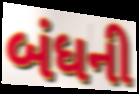
બંધની